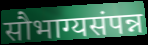
सौभाग्यसंपन्न